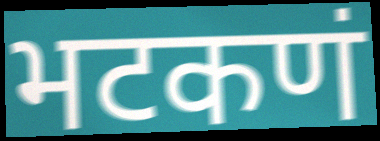
भटकणं